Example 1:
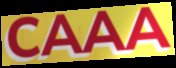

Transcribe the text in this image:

CAAA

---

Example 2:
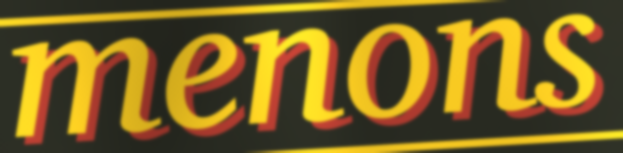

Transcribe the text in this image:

menons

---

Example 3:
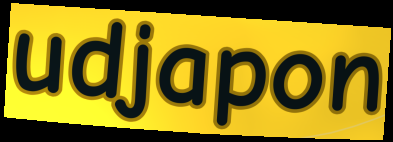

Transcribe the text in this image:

udjapon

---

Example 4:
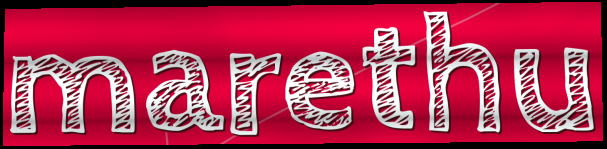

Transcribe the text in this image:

marethu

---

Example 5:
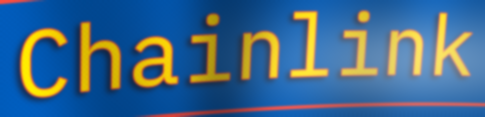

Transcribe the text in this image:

Chainlink